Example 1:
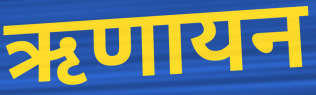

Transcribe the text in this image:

ऋणायन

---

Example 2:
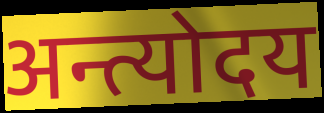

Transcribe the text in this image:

अन्त्योदय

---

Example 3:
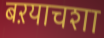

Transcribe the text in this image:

बऱयाचशा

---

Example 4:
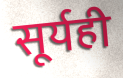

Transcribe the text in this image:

सूर्यही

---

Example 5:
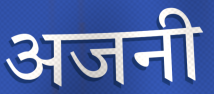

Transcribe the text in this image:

अजनी